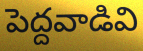
పెద్దవాడివి